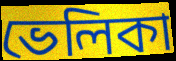
ভেলিকা